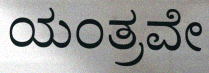
ಯಂತ್ರವೇ